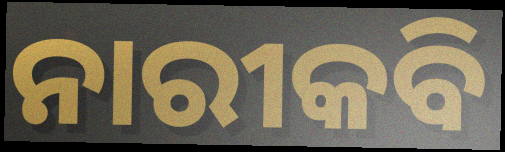
ନାରୀକବି